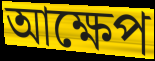
আক্ষেপ